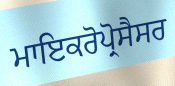
ਮਾਇਕਰੋਪ੍ਰੋਸੈਸਰ